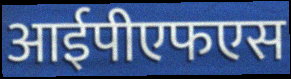
आईपीएफएस